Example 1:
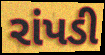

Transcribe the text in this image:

રાંપડી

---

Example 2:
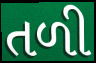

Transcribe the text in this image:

તળી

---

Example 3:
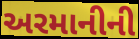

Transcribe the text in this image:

અરમાનીની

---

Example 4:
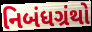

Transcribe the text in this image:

નિબંધગ્રંથો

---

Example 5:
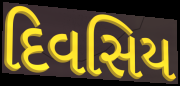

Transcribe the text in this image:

દિવસિય